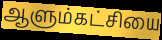
ஆளும்கட்சியை